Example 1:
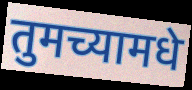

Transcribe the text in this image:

तुमच्यामधे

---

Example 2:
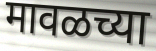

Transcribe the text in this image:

मावळच्या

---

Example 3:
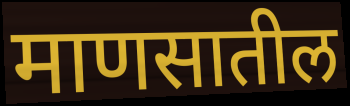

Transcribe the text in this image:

माणसातील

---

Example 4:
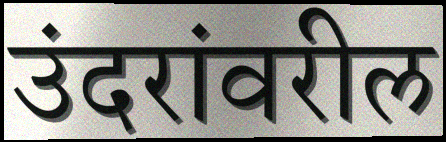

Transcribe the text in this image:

उंदरांवरील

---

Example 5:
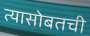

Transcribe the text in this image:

त्यासोबतची